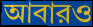
আবারও